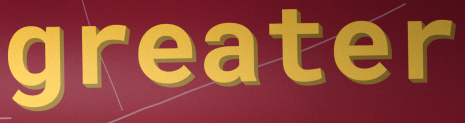
greater